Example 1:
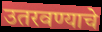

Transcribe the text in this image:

उतरवण्याचे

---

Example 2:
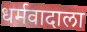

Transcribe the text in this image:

धर्मवादाला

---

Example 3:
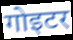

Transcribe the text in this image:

गोइटर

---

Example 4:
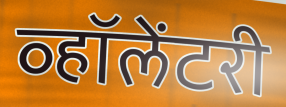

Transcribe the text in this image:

व्हॉलेंटरी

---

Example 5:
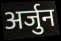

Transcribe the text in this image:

अर्जुन